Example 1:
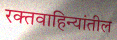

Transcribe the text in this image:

रक्तवाहिन्यांतील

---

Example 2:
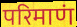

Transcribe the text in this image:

परिमाणं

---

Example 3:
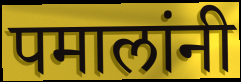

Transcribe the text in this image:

पमालांनी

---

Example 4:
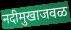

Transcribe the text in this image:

नदीमुखाजवळ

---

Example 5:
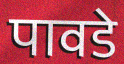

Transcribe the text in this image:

पावडे